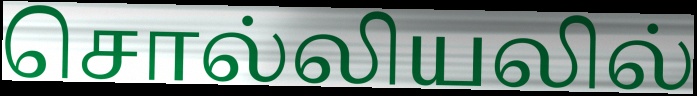
சொல்லியலில்